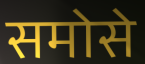
समोसे